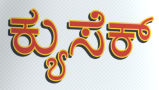
ಕ್ಯುಸೆಕ್